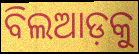
ବିଲଆଡ଼କୁ